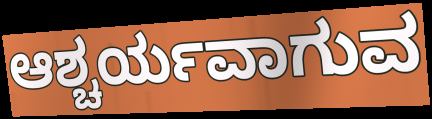
ಆಶ್ಚರ್ಯವಾಗುವ